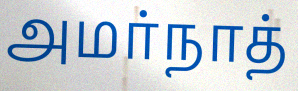
அமர்நாத்